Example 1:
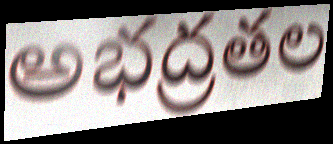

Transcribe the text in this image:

అభద్రతల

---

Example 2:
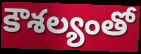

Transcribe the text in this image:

కౌశల్యంతో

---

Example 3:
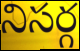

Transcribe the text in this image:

నిసర్గ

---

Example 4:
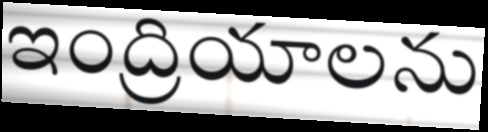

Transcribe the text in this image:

ఇంద్రియాలను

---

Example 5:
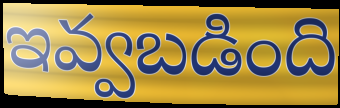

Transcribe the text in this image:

ఇవ్వబడింది